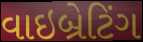
વાઇબ્રેટિંગ